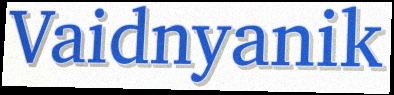
Vaidnyanik